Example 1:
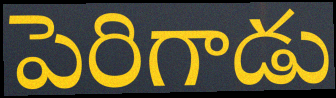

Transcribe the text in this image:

పెరిగాడు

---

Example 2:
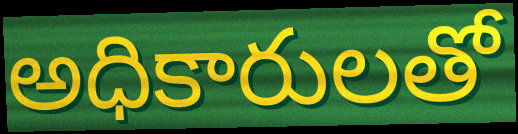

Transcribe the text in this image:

అధికారులతో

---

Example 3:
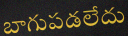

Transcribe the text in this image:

బాగుపడలేదు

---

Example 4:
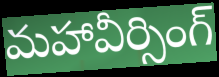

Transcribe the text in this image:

మహావీర్సింగ్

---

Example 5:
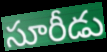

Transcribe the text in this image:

సూరీడు